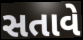
સતાવે